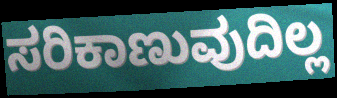
ಸರಿಕಾಣುವುದಿಲ್ಲ